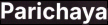
Parichaya